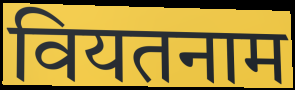
वियतनाम